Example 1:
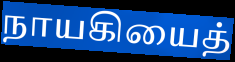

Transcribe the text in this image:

நாயகியைத்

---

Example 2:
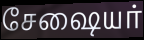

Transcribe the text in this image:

சேஷையர்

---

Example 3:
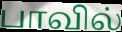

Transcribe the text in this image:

பாவில்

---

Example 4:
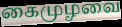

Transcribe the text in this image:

கைமுழவை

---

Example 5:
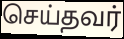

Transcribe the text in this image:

செய்தவர்